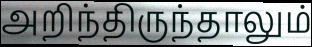
அறிந்திருந்தாலும்